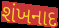
શંખનાદ